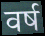
वर्ष